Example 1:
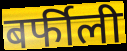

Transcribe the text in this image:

बर्फीली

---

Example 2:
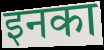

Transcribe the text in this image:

इनका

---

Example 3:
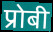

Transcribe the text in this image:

प्रोबी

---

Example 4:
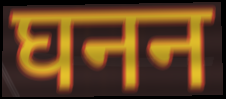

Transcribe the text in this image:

घनन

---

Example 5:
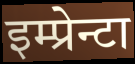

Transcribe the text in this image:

इम्प्रेन्टा